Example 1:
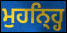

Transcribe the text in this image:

ਮੁਹਨ੍ਹ੍ਹਿ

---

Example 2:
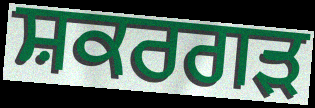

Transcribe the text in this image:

ਸ਼ਕਰਗੜ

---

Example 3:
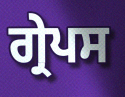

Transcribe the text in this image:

ਗ੍ਰੇਪਸ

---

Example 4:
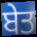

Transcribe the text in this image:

ਬੇਤ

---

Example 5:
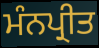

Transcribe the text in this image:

ਮੰਨਪ੍ਰੀਤ